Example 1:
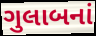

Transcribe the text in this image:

ગુલાબનાં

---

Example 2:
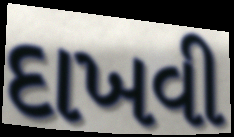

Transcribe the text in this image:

દાખવી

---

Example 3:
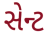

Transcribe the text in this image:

સેન્ટ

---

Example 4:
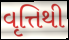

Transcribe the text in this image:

વૃત્તિથી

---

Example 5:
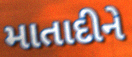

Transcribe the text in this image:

માતાદીને